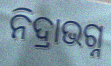
ନିଦ୍ରାଭଗ୍ନ